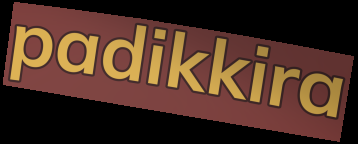
padikkira